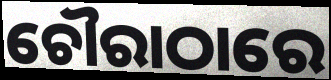
ଚୌରାଠାରେ